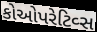
કોઓપરેટિવ્સ